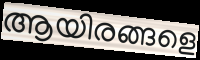
ആയിരങ്ങളെ